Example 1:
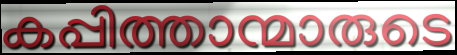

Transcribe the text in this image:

കപ്പിത്താന്മാരുടെ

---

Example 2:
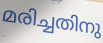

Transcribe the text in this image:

മരിച്ചതിനു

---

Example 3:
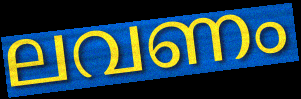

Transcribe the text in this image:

ലവണം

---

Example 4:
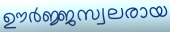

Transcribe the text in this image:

ഊർജ്ജസ്വലരായ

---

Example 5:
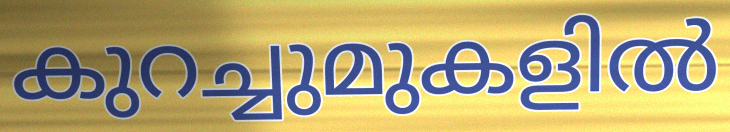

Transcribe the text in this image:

കുറച്ചുമുകളിൽ